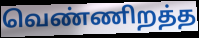
வெண்ணிறத்த